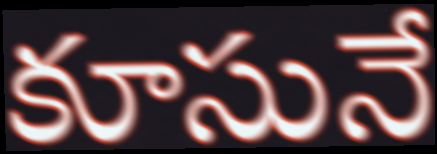
కూసునే